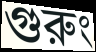
গুরুং